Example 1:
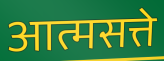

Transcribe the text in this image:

आत्मसत्ते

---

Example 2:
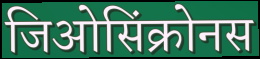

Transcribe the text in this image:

जिओसिंक्रोनस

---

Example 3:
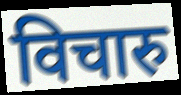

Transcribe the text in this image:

विचारु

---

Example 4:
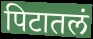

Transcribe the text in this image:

पिटातलं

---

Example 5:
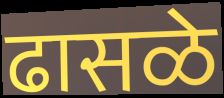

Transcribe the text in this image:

ढासळे